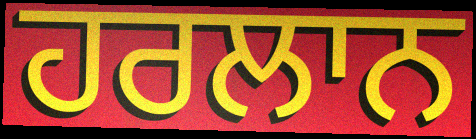
ਹਰਲਾਨ